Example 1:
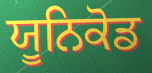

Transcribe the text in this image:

ਯੂਨਿਕੋਡ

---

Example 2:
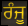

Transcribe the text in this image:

ਰੰਜੂ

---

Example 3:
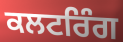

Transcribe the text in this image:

ਕਲਟਰਿੰਗ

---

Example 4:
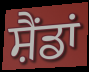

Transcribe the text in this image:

ਸ਼ੈਂਡਾਂ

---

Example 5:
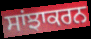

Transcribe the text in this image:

ਸਾਂਝਾਕਰਨ